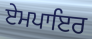
ਏਮਪਾਇਰ